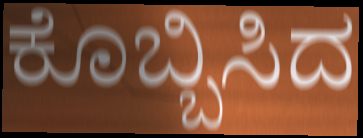
ಕೊಬ್ಬಿಸಿದ